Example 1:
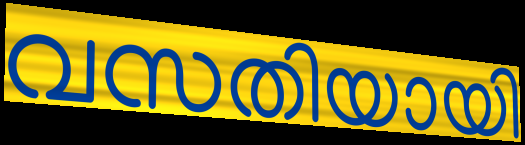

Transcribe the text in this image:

വസതിയായി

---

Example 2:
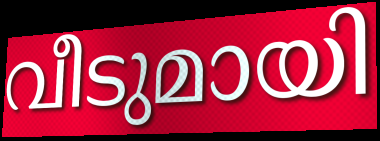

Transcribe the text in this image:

വീടുമായി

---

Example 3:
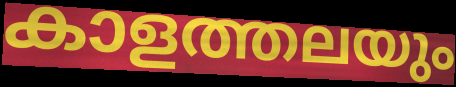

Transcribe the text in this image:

കാളത്തലയും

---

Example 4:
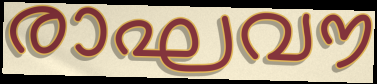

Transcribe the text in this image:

രാഘവൗ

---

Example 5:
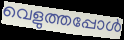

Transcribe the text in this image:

വെളുത്തപ്പോൾ